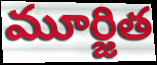
మూర్జిత